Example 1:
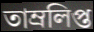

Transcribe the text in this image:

তাম্রলিপ্ত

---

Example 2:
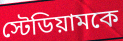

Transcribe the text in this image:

স্টেডিয়ামকে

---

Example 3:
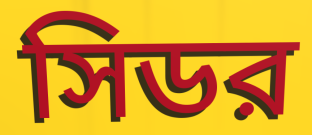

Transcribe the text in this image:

সিডর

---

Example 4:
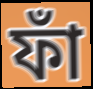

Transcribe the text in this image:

ফাঁ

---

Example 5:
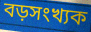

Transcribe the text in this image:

বড়সংখ্যক